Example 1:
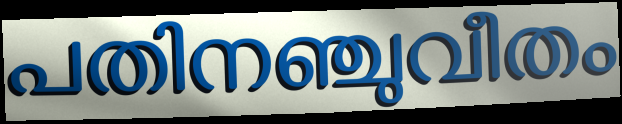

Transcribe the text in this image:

പതിനഞ്ചുവീതം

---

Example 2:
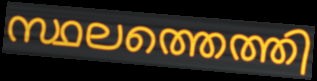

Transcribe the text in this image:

സ്ഥലത്തെത്തി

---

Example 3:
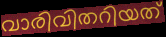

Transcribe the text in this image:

വാരിവിതറിയത്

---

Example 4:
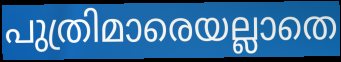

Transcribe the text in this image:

പുത്രിമാരെയല്ലാതെ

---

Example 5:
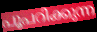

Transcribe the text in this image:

പൂപറിക്കുന്ന